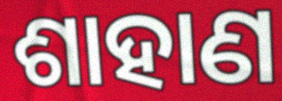
ଶାହାଣ